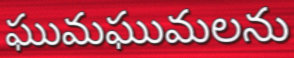
ఘుమఘుమలను